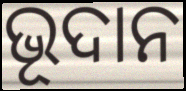
ଭୂଦାନ